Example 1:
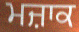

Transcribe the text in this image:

ਮਜ਼ਾਕ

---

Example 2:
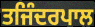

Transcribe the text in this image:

ਤਜਿੰਦਰਪਾਲ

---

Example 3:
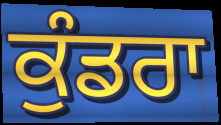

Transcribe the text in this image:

ਕੁੰਡਰਾ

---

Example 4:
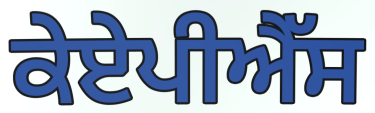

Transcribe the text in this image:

ਕੇਏਪੀਐੱਸ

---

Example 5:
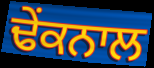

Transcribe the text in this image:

ਢੇਂਕਨਾਲ